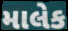
માલેક